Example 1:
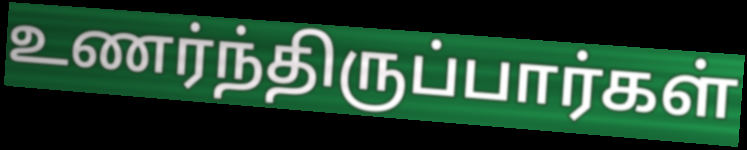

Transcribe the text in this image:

உணர்ந்திருப்பார்கள்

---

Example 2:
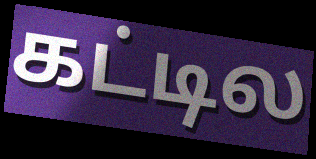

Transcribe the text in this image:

கட்டில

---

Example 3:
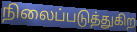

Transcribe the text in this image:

நிலைப்படுத்துகிற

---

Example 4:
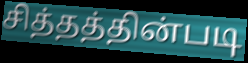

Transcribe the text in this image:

சித்தத்தின்படி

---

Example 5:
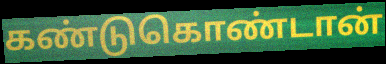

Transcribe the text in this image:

கண்டுகொண்டான்